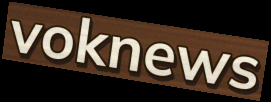
voknews